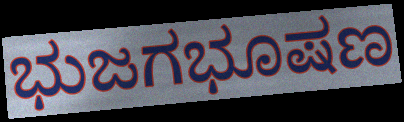
ಭುಜಗಭೂಷಣ